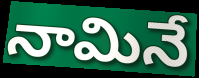
నామినే